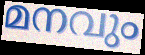
മനവും